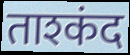
ताश्कंद